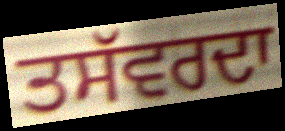
ਤਸੱਵਰਦਾ